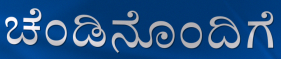
ಚೆಂಡಿನೊಂದಿಗೆ